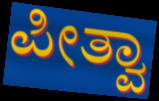
ಪೀತ್ವಾ